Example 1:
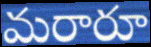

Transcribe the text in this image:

మరారూ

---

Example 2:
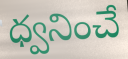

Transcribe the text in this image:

ధ్వనించే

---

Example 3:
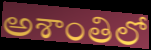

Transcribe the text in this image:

అశాంతిలో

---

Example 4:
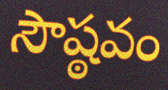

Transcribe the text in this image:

సౌష్ఠవం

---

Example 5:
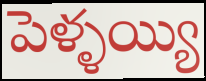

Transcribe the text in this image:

పెళ్ళయ్యి